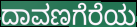
ದಾವಣಗೆರೆಯ